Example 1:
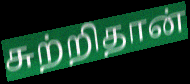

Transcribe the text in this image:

சுற்றிதான்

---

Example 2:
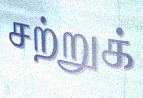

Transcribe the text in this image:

சற்றுக்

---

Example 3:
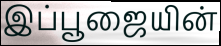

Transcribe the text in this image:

இப்பூஜையின்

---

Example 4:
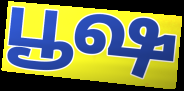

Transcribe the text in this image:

பூஷ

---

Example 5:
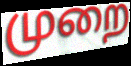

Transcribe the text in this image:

முறை